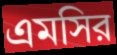
এমসির